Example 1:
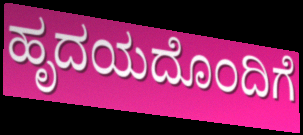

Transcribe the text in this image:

ಹೃದಯದೊಂದಿಗೆ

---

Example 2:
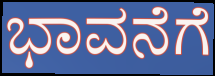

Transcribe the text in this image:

ಭಾವನೆಗೆ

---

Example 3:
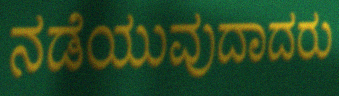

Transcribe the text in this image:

ನಡೆಯುವುದಾದರು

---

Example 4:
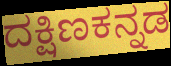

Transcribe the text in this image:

ದಕ್ಷಿಣಕನ್ನಡ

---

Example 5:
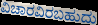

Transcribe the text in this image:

ವಿಚಾರವಿರಬಹುದು